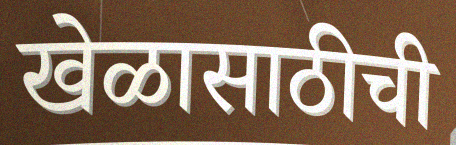
खेळासाठीची